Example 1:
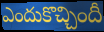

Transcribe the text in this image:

ఎందుకొచ్చిందీ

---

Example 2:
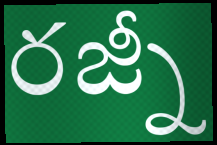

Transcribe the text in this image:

రజ్నీ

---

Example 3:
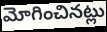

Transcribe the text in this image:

మోగించినట్లు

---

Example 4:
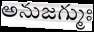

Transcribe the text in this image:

అనుజగ్ముః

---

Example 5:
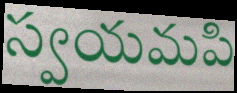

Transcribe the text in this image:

స్వయమపి